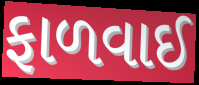
ફાળવાઈ